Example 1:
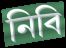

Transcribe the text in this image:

নিবি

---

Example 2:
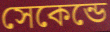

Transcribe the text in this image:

সেকেন্ডে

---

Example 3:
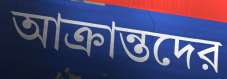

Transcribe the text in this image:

আক্রান্তদের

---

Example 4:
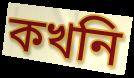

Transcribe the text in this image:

কখনি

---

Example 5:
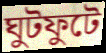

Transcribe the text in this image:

ঘুটফুটে